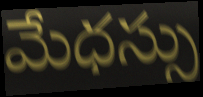
మేధస్సు